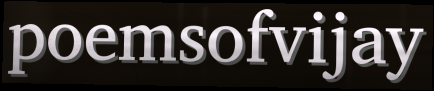
poemsofvijay